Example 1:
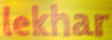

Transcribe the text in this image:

lekhar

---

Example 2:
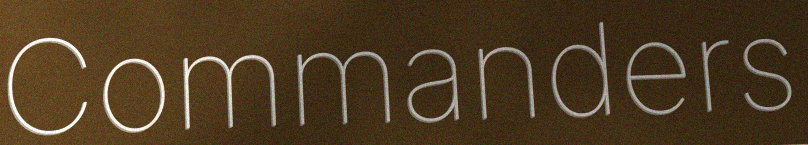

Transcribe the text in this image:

Commanders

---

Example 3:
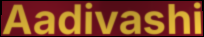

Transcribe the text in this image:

Aadivashi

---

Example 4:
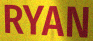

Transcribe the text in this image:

RYAN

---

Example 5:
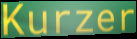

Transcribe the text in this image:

Kurzer